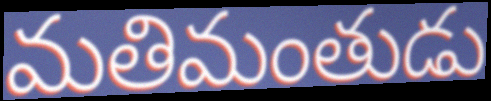
మతిమంతుడు